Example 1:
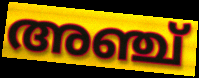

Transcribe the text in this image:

അഞ്ച്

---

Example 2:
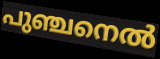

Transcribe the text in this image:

പുഞ്ചനെൽ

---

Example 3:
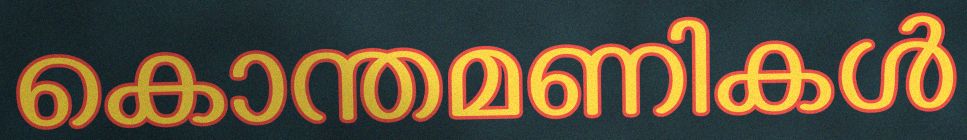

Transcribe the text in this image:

കൊന്തമണികൾ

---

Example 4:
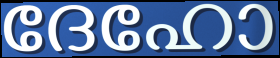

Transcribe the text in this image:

ദേഹോ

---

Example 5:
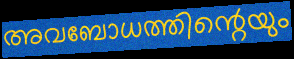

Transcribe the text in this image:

അവബോധത്തിന്റെയും